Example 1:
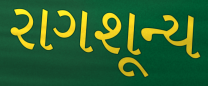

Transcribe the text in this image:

રાગશૂન્ય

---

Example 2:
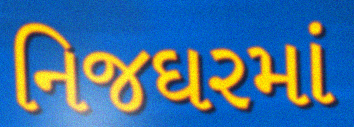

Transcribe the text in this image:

નિજઘરમાં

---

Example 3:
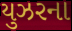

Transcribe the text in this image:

યુઝરના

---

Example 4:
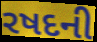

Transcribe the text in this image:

રષદની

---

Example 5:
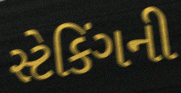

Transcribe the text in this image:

સ્ટેકિંગની